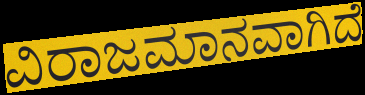
ವಿರಾಜಮಾನವಾಗಿದೆ